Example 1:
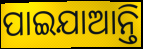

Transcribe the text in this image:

ପାଇଯାଆନ୍ତି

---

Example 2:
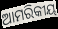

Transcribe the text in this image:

ଆମରିକୀୟ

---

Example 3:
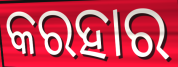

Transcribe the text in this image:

କରହାର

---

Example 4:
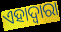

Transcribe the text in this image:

ଏହାଦ୍ୱାରା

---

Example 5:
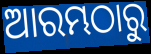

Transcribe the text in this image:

ଆରମ୍ଭଠାରୁ